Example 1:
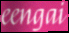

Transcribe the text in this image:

eengai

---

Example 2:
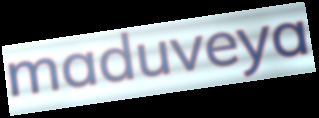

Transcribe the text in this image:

maduveya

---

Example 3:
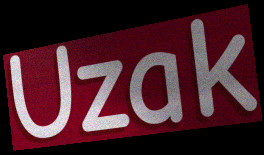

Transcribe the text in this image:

Uzak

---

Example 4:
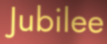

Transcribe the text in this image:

Jubilee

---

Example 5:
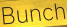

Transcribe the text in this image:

Bunch